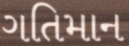
ગતિમાન